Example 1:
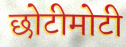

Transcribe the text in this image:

छोटीमोटी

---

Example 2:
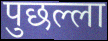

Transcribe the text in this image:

पुछल्ला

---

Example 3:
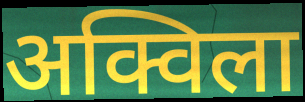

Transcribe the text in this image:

अक्विला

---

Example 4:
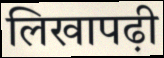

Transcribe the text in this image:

लिखापढ़ी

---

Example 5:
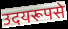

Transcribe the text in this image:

उदयरूपसे